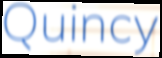
Quincy